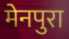
मेनपुरा